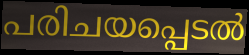
പരിചയപ്പെടൽ